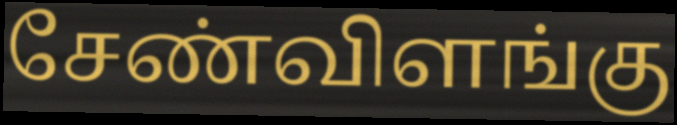
சேண்விளங்கு